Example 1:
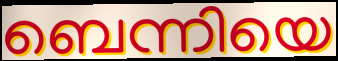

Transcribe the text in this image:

ബെന്നിയെ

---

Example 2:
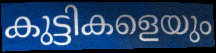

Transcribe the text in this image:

കുട്ടികളെയും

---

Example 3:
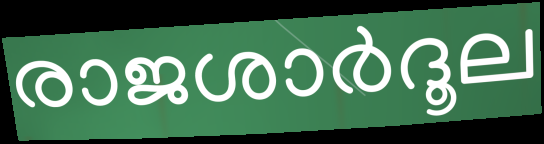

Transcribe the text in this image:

രാജശാർദൂല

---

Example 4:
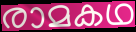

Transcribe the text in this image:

രാമകഥ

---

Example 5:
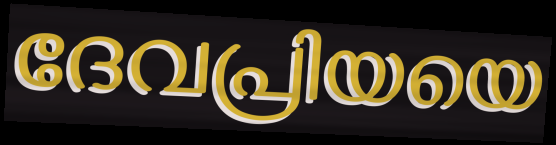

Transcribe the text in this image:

ദേവപ്രിയയെ